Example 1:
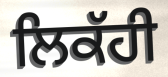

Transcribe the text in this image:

ਲਿਕੱਹੀ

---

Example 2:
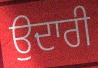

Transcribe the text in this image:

ਉਦਾਰੀ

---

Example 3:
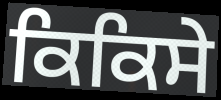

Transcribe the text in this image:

ਕਿਕਿਸੇ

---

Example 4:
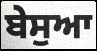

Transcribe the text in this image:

ਬੇਸੁਆ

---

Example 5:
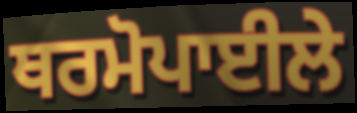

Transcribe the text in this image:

ਥਰਮੋਪਾਈਲੇ